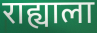
राह्याला